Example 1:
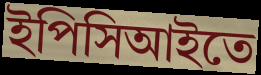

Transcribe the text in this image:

ইপিসিআইতে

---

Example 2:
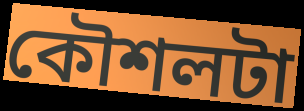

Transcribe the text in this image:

কৌশলটা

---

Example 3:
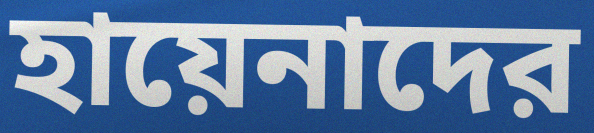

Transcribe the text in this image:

হায়েনাদের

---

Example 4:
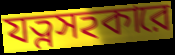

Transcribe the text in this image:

যত্নসহকারে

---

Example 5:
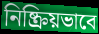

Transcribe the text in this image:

নিষ্ক্রিয়ভাবে